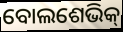
ବୋଲଶେଭିକ୍